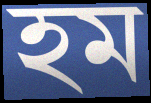
হম